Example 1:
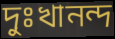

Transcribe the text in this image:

দুঃখানন্দ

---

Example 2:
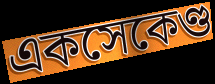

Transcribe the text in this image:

একসেকেণ্ড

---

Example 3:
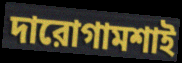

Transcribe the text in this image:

দারোগামশাই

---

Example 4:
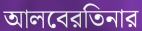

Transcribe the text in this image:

আলবেরতিনার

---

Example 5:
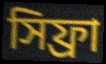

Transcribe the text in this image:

সিফ্রা